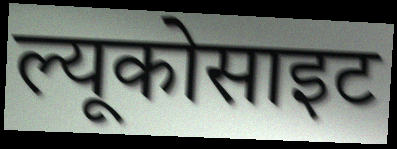
ल्यूकोसाइट